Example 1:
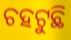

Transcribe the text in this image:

ଚହଟୁଛି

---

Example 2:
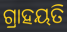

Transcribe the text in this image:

ଗ୍ରାହୟତି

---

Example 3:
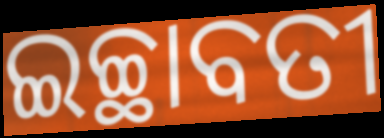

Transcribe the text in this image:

ଇଚ୍ଛାବତୀ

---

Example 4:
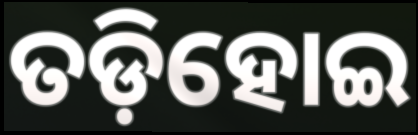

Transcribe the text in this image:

ତଡ଼ିହୋଇ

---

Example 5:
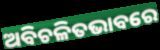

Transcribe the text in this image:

ଅବିଚଳିତଭାବରେ